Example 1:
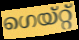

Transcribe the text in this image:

ഗെയ്റ്റ്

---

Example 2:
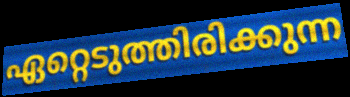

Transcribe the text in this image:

ഏറ്റെടുത്തിരിക്കുന്ന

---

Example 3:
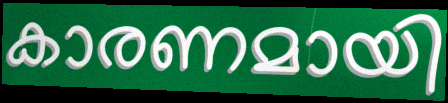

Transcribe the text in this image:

കാരണമായി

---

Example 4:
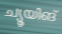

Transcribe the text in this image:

ച്യൂയിങ്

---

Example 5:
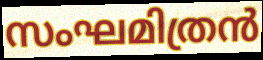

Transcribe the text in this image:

സംഘമിത്രൻ